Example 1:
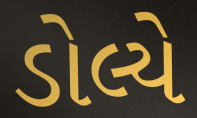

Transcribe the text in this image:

ડોલ્યે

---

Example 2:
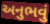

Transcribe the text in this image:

અનુભવું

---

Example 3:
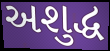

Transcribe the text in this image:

અશુદ્ધ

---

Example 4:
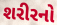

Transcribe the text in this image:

શરીરનો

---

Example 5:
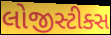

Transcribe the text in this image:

લોજીસ્ટીક્સ